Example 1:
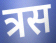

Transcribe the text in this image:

त्रस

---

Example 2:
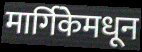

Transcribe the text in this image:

मार्गिकेमधून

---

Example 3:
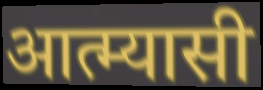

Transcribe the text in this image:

आत्म्यासी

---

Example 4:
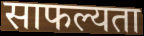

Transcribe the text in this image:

साफल्यता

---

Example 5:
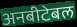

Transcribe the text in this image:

अनबीटेबल